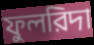
ফুলরিদা